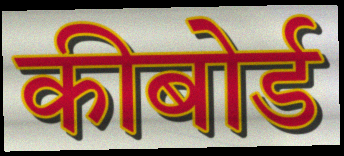
कीबोर्ड